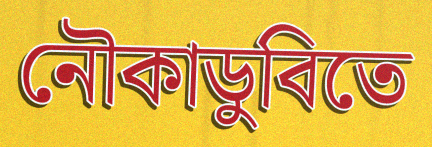
নৌকাডুবিতে